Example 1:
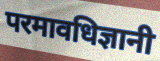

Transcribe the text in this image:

परमावधिज्ञानी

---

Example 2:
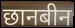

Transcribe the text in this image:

छानबीन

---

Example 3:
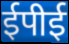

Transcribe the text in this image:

ईपीई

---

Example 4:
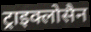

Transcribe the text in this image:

ट्राइक्लोसैन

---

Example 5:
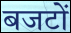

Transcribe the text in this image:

बजटों